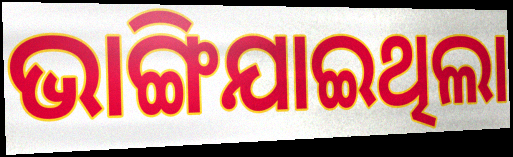
ଭାଙ୍ଗିଯାଇଥିଲା